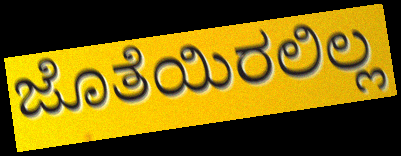
ಜೊತೆಯಿರಲಿಲ್ಲ